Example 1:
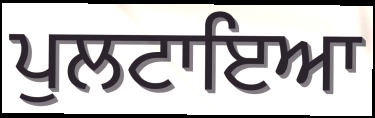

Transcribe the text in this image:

ਪੁਲਟਾਇਆ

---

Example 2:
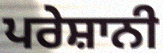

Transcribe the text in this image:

ਪਰੇਸ਼ਾਨੀ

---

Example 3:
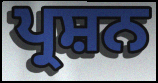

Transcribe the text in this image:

ਪ੍ਰਸ਼ਨ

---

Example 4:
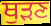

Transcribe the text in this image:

ਥੁੜਣ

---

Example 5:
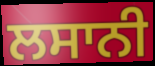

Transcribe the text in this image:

ਲਸਾਨੀ